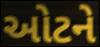
ઓટને